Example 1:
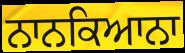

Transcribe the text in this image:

ਨਾਨਕਿਆਨਾ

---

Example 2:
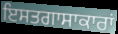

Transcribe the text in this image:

ਇਸਤਗਾਸਾਕਾਰਾਂ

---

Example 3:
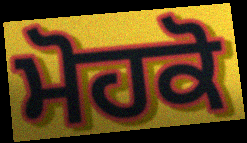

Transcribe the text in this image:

ਮੋਹਕੋ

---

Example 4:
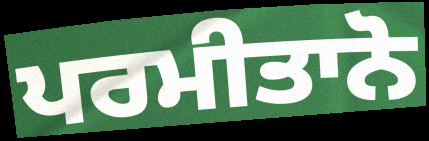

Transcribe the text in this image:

ਪਰਮੀਤਾਨੋ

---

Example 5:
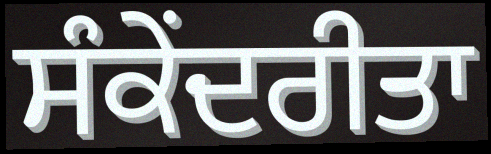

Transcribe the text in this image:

ਸੰਕੇਂਦਰੀਤਾ